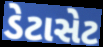
ડેટાસેટ